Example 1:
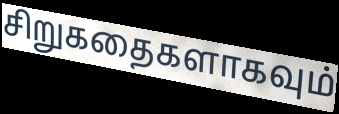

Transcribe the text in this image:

சிறுகதைகளாகவும்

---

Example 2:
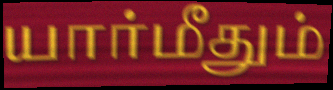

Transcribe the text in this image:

யார்மீதும்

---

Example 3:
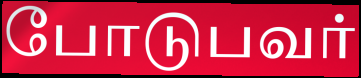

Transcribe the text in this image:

போடுபவர்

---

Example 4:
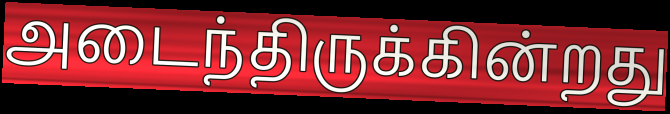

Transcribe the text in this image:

அடைந்திருக்கின்றது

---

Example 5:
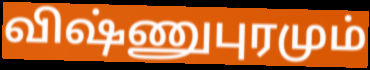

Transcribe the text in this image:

விஷ்ணுபுரமும்